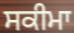
ਸਕੀਮਾ